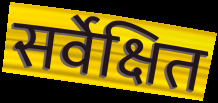
सर्वेक्षित